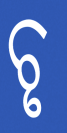
ଚୃ